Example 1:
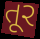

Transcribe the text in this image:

તૂર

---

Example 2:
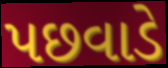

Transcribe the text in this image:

પછવાડે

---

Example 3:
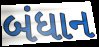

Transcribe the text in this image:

બંધાન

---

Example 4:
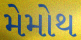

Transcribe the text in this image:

મેમોથ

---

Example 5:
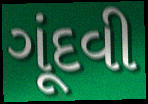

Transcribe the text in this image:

ગૂંદવી